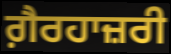
ਗ਼ੈਰਹਾਜ਼ਰੀ